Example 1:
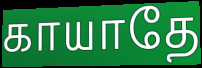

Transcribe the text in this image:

காயாதே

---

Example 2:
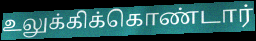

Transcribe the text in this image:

உலுக்கிக்கொண்டார்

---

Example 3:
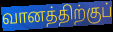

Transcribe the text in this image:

வானத்திற்குப்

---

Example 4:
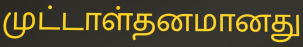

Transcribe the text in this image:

முட்டாள்தனமானது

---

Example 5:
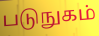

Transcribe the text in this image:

படுநுகம்